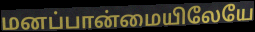
மனப்பான்மையிலேயே